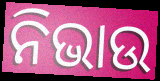
ନିଭାଉ